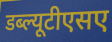
डब्ल्यूटीएसए